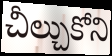
చీల్చుకోని